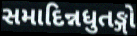
સમાદિન્નધુતઙ્ગો